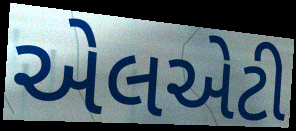
એલએટી